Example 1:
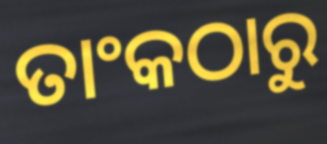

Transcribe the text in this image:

ତାଂକଠାରୁ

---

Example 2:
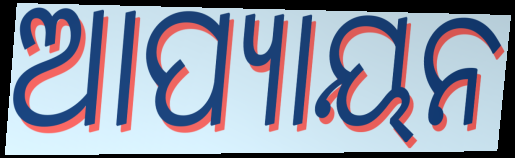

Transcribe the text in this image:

ଆପ୍ୟାୟନ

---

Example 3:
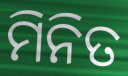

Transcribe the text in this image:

ମିନିତ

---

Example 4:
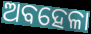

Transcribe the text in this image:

ଅବହେଳା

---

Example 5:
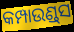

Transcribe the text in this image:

କମ୍ପାଉଣ୍ଡ୍‌ସ